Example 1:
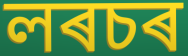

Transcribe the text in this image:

লৰচৰ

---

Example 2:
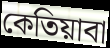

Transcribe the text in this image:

কেতিয়াবা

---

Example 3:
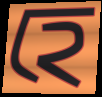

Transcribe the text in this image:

হে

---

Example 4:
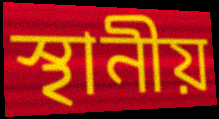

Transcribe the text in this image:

স্থানীয়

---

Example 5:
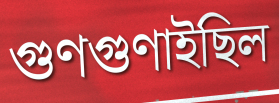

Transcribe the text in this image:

গুণগুণাইছিল